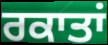
ਰਕਾਤਾਂ